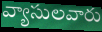
వ్యాసులవారు